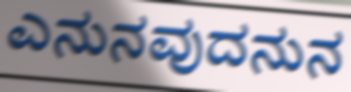
ಎನುನವುದನುನ